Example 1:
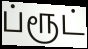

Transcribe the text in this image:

ப்ரூட்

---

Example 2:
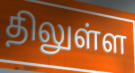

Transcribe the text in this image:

திலுள்ள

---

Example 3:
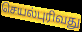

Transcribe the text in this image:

செயல்புரிவது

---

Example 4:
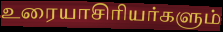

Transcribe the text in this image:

உரையாசிரியர்களும்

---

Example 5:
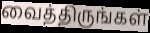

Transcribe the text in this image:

வைத்திருங்கள்